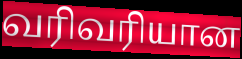
வரிவரியான